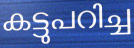
കട്ടുപറിച്ച